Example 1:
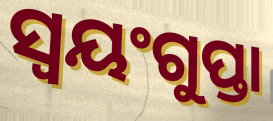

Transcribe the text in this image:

ସ୍ୱୟଂଗୁପ୍ତା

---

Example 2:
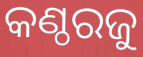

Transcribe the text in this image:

କଣ୍ଠରଜୁ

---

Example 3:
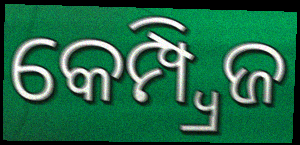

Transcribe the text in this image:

କେମ୍ପ୍ୱ୍ରିଜ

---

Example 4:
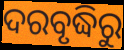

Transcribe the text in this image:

ଦରବୃଦ୍ଧିରୁ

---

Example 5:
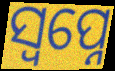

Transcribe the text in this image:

ସ୍ବପ୍ନେ